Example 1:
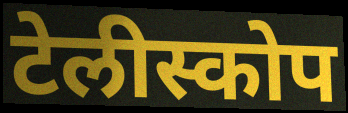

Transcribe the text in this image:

टेलीस्कोप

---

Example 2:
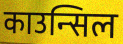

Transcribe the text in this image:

काउन्सिल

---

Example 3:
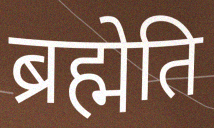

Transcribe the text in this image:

ब्रह्मेति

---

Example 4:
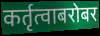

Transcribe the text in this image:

कर्तृत्वाबरोबर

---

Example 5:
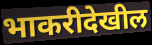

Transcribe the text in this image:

भाकरीदेखील